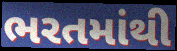
ભરતમાંથી